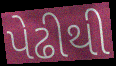
પેઢીથી